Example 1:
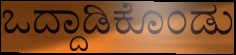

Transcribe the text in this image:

ಒದ್ದಾಡಿಕೊಂಡು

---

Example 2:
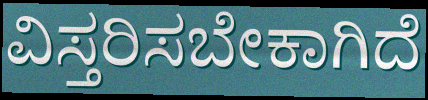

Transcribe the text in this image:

ವಿಸ್ತರಿಸಬೇಕಾಗಿದೆ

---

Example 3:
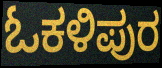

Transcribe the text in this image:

ಓಕಳಿಪುರ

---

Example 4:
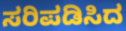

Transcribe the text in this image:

ಸರಿಪಡಿಸಿದ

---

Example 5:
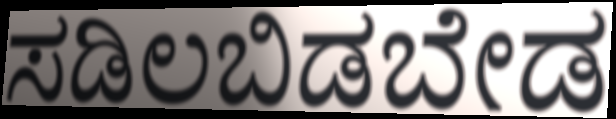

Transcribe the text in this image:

ಸಡಿಲಬಿಡಬೇಡ